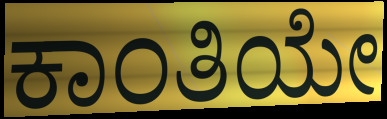
ಕಾಂತಿಯೇ